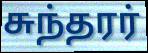
சுந்தரர்